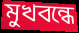
মুখবন্ধে